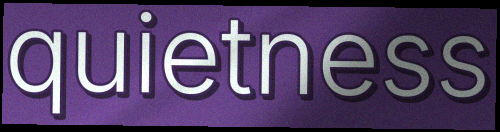
quietness